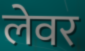
लेवर